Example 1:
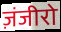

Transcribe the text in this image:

ज़ंजीरो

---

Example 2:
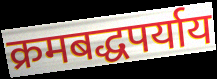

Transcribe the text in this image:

क्रमबद्धपर्याय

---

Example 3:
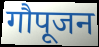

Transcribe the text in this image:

गौपूजन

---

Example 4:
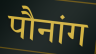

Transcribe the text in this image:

पौनांग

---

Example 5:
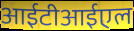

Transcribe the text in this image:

आईटीआईएल